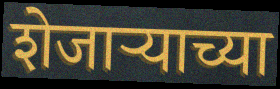
शेजार्‍याच्या